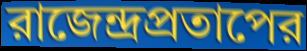
রাজেন্দ্রপ্রতাপের